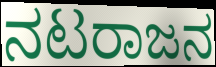
ನಟರಾಜನ